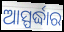
ଆସ୍ପର୍ଦ୍ଧାର